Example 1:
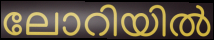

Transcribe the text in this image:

ലോറിയിൽ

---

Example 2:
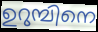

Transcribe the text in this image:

ഉറുമ്പിനെ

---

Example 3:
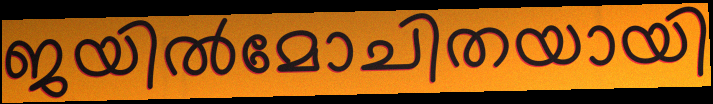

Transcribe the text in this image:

ജയിൽമോചിതയായി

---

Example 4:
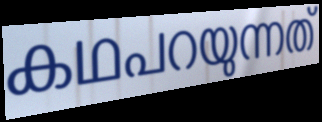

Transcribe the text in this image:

കഥപറയുന്നത്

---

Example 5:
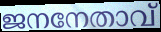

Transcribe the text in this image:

ജനനേതാവ്